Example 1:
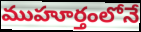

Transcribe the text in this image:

ముహూర్తంలోనే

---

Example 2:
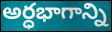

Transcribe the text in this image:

అర్ధభాగాన్ని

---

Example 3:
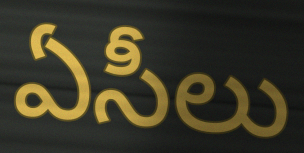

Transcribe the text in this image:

ఏసీలు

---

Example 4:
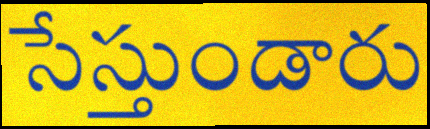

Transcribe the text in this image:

సేస్తుండారు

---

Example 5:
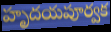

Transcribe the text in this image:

హృదయపూర్వక